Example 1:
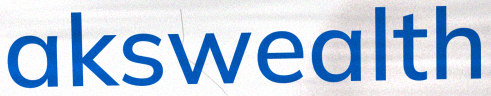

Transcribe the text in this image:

akswealth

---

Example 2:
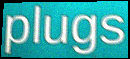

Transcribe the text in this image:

plugs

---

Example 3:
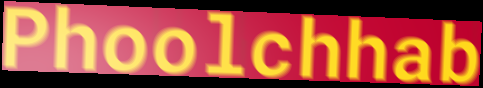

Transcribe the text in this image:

Phoolchhab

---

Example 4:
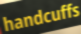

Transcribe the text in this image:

handcuffs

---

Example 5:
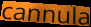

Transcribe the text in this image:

cannula